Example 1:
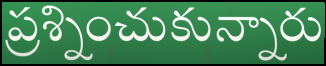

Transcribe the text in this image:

ప్రశ్నించుకున్నారు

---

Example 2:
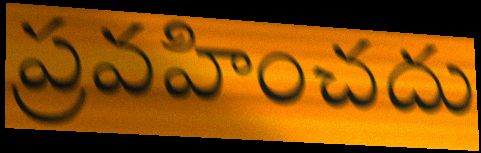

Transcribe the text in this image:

ప్రవహించదు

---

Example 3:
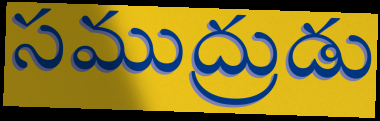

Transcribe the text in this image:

సముద్రుడు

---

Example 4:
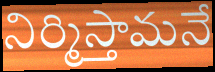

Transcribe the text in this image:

నిర్మిస్తామనే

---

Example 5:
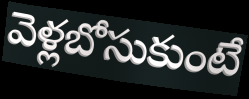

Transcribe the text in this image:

వెళ్లబోసుకుంటే